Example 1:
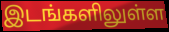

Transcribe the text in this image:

இடங்களிலுள்ள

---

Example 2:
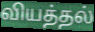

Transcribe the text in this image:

வியத்தல்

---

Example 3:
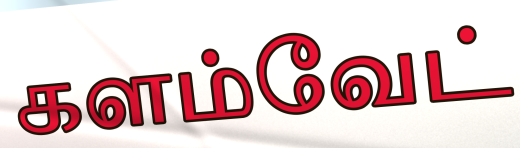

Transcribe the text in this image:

களம்வேட்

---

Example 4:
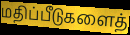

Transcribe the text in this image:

மதிப்பீடுகளைத்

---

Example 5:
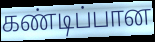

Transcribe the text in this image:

கண்டிப்பான